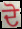
ਦੋ